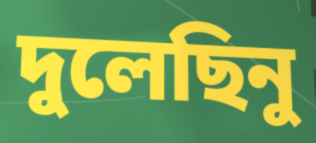
দুলেছিনু